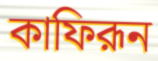
কাফিরূন